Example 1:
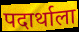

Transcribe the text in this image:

पदार्थाला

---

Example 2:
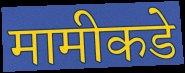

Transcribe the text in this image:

मामीकडे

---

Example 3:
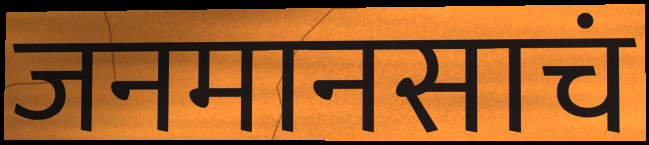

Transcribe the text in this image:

जनमानसाचं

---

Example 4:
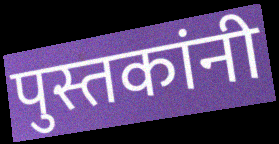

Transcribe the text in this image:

पुस्तकांनी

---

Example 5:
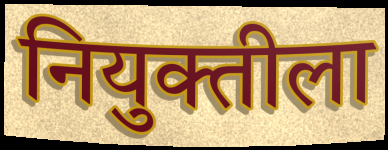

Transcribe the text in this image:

नियुक्तीला